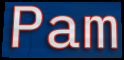
Pam